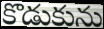
కొడుకును